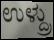
ಉಳ್ದ್ರು